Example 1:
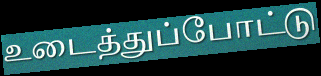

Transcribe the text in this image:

உடைத்துப்போட்டு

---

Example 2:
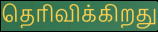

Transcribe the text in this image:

தெரிவிக்கிறது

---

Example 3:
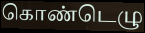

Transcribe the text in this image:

கொண்டெழு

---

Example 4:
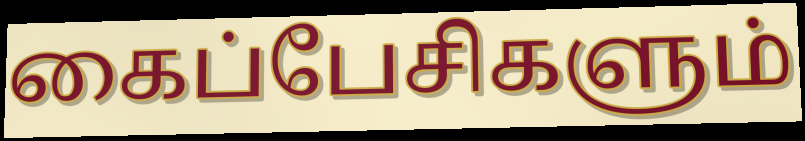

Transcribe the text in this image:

கைப்பேசிகளும்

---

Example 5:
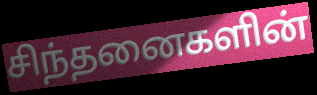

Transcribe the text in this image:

சிந்தனைகளின்